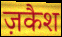
ज़कैश